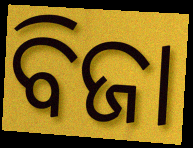
ବିଜା